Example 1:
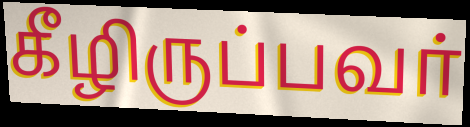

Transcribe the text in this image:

கீழிருப்பவர்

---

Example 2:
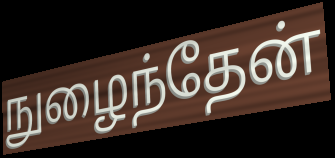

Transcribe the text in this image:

நுழைந்தேன்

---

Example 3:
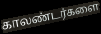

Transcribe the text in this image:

காலண்டர்களை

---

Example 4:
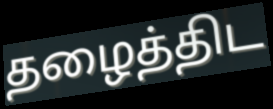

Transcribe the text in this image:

தழைத்திட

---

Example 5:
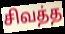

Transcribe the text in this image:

சிவத்த